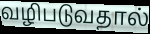
வழிபடுவதால்